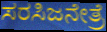
ಸರಸಿಜನೇತ್ರೆ